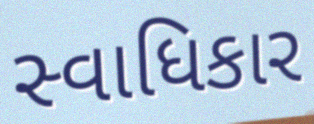
સ્વાધિકાર